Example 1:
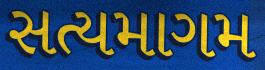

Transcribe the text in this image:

સત્યમાગમ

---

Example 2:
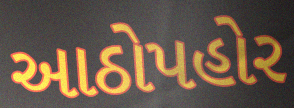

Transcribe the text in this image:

આઠોપહોર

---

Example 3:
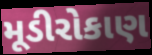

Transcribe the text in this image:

મૂડીરોકાણ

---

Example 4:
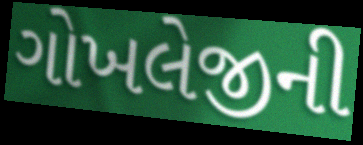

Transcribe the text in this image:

ગોખલેજીની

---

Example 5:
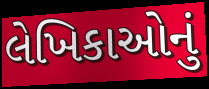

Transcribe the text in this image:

લેખિકાઓનું